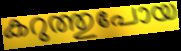
കറുത്തുപോയ